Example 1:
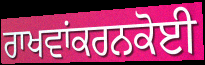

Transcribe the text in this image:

ਰਾਖਵਾਂਕਰਨਕੋਈ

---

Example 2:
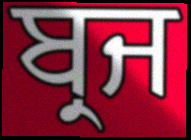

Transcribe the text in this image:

ਬ੍ਰਜ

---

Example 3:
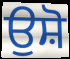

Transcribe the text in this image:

ਉਸ਼ੋ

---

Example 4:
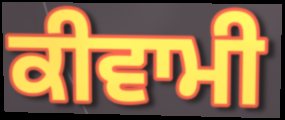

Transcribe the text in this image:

ਕੀਵਾਮੀ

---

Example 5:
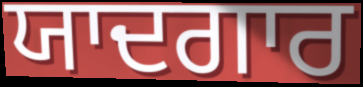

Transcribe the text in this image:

ਯਾਦਗਾਰ